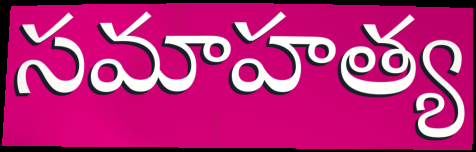
సమాహత్య